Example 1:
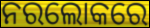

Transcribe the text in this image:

ନରଲୋକରେ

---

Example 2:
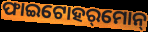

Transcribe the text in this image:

ଫାଇଟୋହର୍‌ମୋନ୍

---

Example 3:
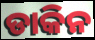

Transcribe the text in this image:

ଡାକିନ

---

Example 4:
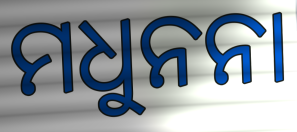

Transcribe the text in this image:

ମଧୁନନା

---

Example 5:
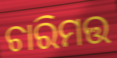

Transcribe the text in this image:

ଚାରିମତ୍ତ